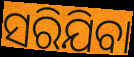
ସରିଯିବା